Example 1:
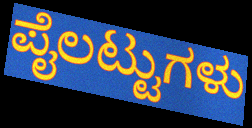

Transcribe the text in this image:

ಪೈಲಟ್ಟುಗಳು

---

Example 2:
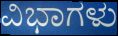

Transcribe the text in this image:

ವಿಭಾಗಳು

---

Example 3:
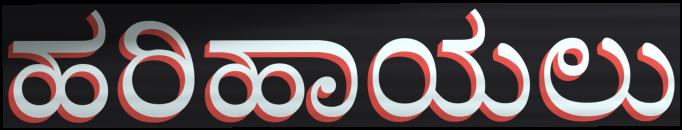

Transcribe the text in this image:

ಹರಿಹಾಯಲು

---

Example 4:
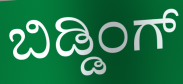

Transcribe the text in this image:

ಬಿಡ್ಡಿಂಗ್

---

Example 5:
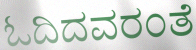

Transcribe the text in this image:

ಓದಿದವರಂತೆ